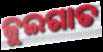
ଜୁଇଗାତ